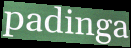
padinga